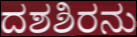
ದಶಶಿರನು